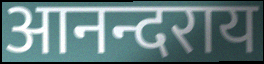
आनन्दराय